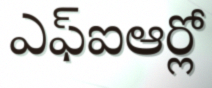
ఎఫ్ఐఆర్లో